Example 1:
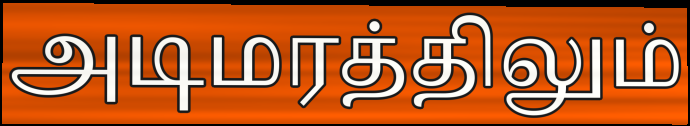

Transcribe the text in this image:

அடிமரத்திலும்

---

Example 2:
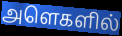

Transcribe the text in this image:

அளெகளில்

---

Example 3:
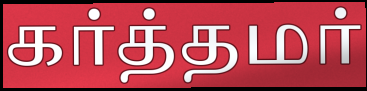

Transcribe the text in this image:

கர்த்தமர்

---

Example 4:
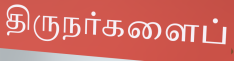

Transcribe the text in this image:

திருநர்களைப்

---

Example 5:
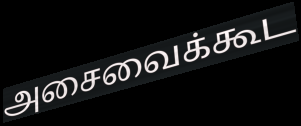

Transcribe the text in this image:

அசைவைக்கூட